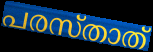
പരസ്താത്